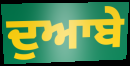
ਦੁਆਬੇ